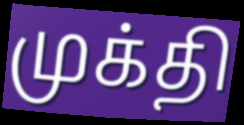
முக்தி